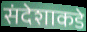
संदेशाकडे